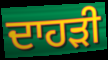
ਦਾਹੜੀ